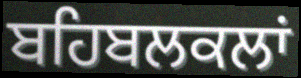
ਬਹਿਬਲਕਲਾਂ